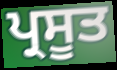
ਪ੍ਰਸੂਤ